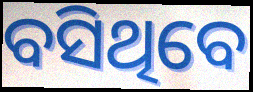
ବସିଥିବେ